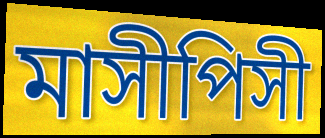
মাসীপিসী